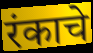
रंकाचे